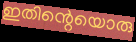
ഇതിന്റെയൊരു